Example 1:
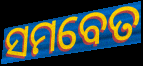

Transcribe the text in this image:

ସମବେତ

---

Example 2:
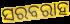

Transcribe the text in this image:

ସରବରାହ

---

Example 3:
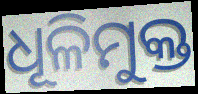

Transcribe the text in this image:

ଧୂଳିମୁକ୍ତ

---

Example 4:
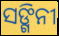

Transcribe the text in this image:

ସଙ୍ଗିନୀ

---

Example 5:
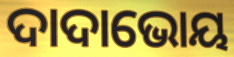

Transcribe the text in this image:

ଦାଦାଭୋୟ